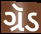
ગ્રૅડ